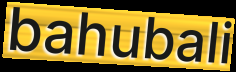
bahubali